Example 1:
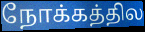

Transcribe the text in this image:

நோக்கத்தில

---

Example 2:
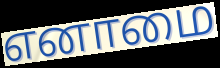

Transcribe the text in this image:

எனாமை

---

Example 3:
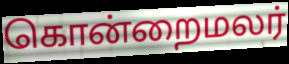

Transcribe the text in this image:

கொன்றைமலர்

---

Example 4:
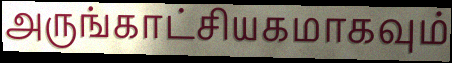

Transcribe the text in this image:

அருங்காட்சியகமாகவும்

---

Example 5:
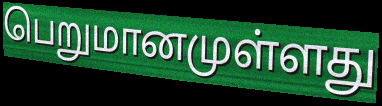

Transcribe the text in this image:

பெறுமானமுள்ளது